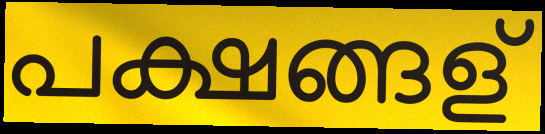
പക്ഷങ്ങള്